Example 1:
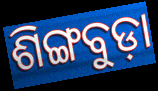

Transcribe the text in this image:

ଶିଙ୍ଗବୁଡ଼ା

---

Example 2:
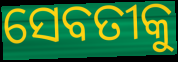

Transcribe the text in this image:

ସେବତୀକୁ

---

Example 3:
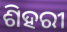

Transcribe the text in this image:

ଶିହରୀ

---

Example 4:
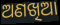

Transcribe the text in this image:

ଅଣଖିଆ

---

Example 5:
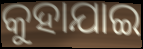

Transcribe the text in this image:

କୁହାଯାଇ